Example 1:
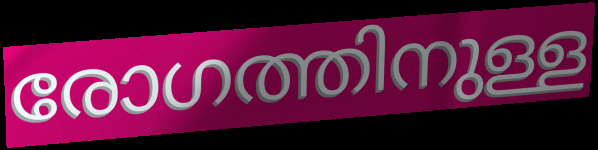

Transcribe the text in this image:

രോഗത്തിനുള്ള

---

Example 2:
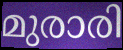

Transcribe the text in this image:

മുരാരി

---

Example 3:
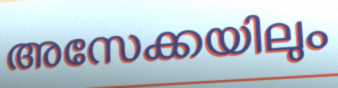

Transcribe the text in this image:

അസേക്കയിലും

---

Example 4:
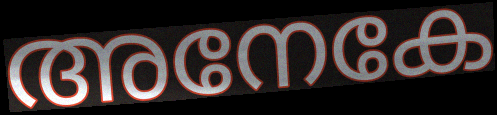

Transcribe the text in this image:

അനേകേ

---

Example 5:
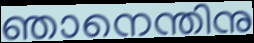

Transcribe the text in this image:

ഞാനെന്തിനു